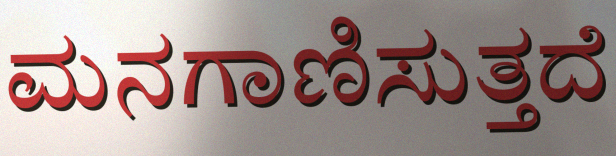
ಮನಗಾಣಿಸುತ್ತದೆ